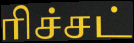
ரிச்சட்